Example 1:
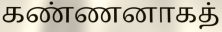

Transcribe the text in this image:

கண்ணனாகத்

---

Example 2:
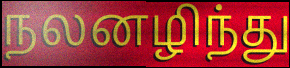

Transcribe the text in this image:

நலனழிந்து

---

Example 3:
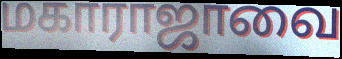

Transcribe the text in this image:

மகாராஜாவை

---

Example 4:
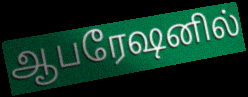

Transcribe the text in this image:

ஆபரேஷனில்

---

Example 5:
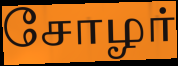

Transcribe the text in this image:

சோழர்